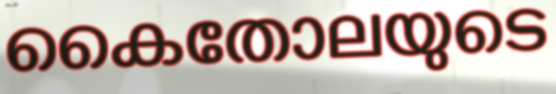
കൈതോലയുടെ